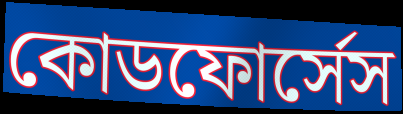
কোডফোর্সেস